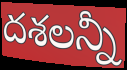
దశలన్నీ